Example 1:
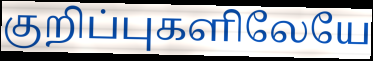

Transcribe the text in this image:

குறிப்புகளிலேயே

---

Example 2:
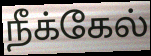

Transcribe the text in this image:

நீக்கேல்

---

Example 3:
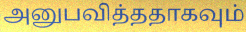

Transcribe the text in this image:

அனுபவித்ததாகவும்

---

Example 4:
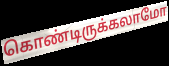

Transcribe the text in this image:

கொண்டிருக்கலாமோ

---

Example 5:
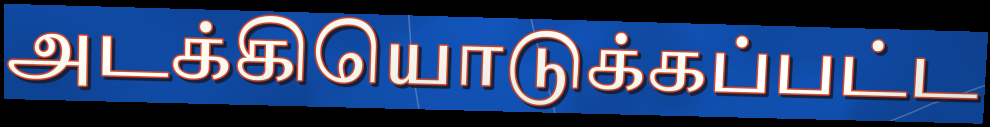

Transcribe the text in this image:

அடக்கியொடுக்கப்பட்ட